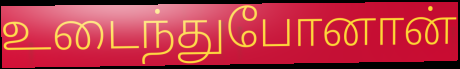
உடைந்துபோனான்